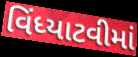
વિંધ્યાટવીમાં